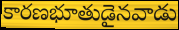
కారణభూతుడైనవాడు